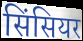
सिंसियर